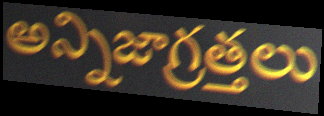
అన్నిజాగ్రత్తలు